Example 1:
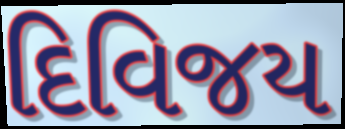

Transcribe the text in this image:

દિવિજય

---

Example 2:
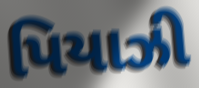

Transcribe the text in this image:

પિયાઝી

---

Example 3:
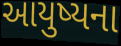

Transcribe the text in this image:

આયુષ્યના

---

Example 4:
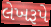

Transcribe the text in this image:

લેખરૂપે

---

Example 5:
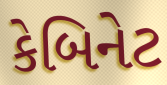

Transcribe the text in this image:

કેબિનેટ